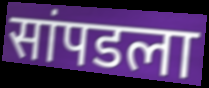
सांपडला